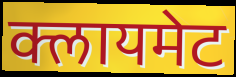
क्लायमेट